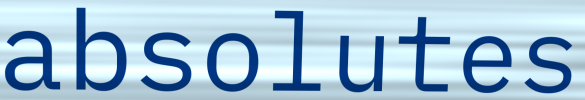
absolutes